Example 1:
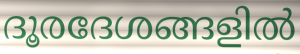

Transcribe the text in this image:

ദൂരദേശങ്ങളിൽ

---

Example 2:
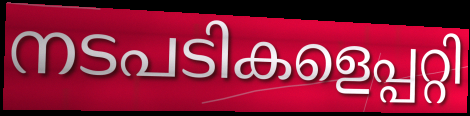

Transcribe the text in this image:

നടപടികളെപ്പറ്റി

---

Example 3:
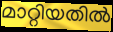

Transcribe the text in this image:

മാറ്റിയതിൽ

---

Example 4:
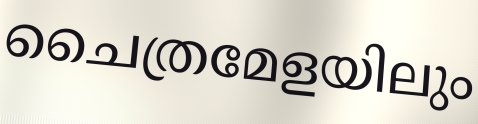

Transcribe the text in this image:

ചൈത്രമേളയിലും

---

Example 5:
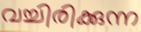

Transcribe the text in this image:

വച്ചിരിക്കുന്ന